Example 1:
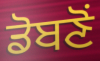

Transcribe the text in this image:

ਡੋਬਣੋਂ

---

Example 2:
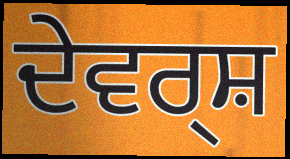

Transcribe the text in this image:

ਦੇਵਰ੍ਸ਼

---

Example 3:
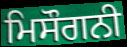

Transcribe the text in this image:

ਮਿਸੌਗਨੀ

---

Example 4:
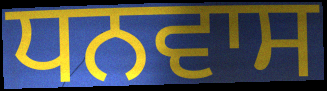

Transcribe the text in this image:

ਧਨਵਾਸ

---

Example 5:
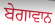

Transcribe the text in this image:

ਬੇਗਾਵਾਨ